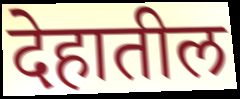
देहातील